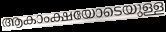
ആകാംക്ഷയോടെയുള്ള